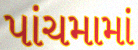
પાંચમામાં